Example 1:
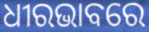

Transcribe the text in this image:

ଧୀରଭାବରେ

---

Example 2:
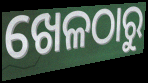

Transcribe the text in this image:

ଖେଳଠାରୁ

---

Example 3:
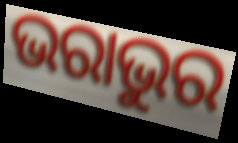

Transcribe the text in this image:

ଭରାଭୁର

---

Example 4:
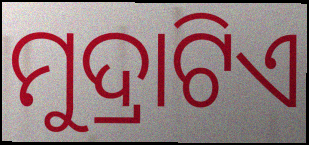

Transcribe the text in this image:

ମୁଦ୍ରାଟିଏ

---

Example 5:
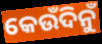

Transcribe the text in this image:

କେଉଁଦିନୁଁ